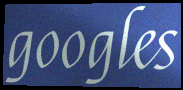
googles